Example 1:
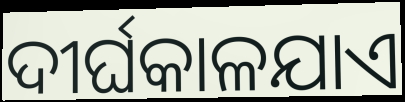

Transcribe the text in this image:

ଦୀର୍ଘକାଳଯାଏ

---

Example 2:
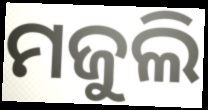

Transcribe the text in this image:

ମଜୁଲି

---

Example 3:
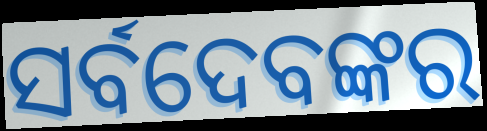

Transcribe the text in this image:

ସର୍ବଦେବଙ୍କର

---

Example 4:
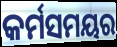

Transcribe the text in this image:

କର୍ମସମୟର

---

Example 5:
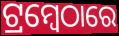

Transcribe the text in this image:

ଟ୍ରମ୍ବେଠାରେ